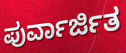
ಪುರ್ವಾರ್ಜಿತ